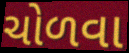
ચોળવા